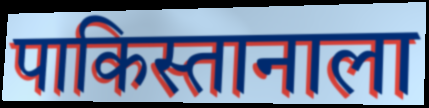
पाकिस्तानाला